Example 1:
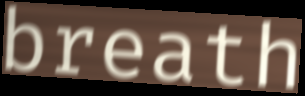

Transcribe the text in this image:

breath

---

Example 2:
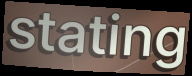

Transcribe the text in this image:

stating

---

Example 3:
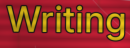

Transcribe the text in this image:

Writing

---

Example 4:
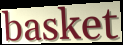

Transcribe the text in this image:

basket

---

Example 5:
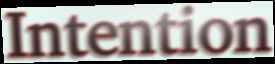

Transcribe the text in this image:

Intention